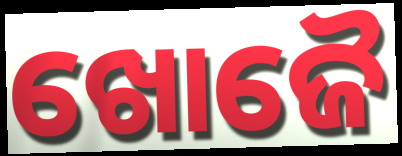
ଖୋଜୈ